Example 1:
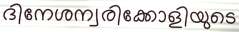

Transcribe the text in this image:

ദിനേശന്വരിക്കോളിയുടെ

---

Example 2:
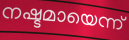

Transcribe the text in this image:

നഷ്ടമായെന്ന്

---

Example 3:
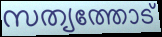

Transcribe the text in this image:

സത്യത്തോട്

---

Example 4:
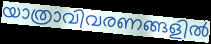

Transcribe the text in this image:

യാത്രാവിവരണങ്ങളിൽ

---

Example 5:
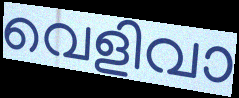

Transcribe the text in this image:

വെളിവാ